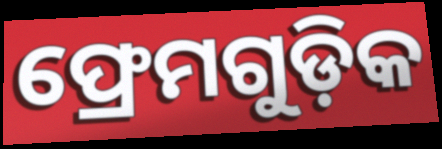
ଫ୍ରେମଗୁଡ଼ିକ